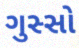
ગુસ્સો